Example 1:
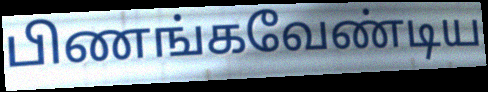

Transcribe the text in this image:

பிணங்கவேண்டிய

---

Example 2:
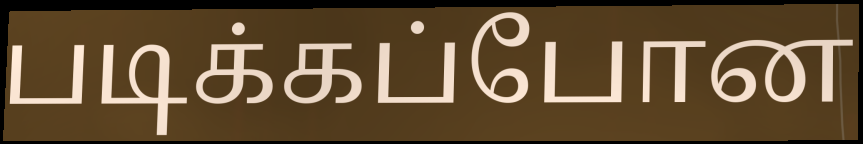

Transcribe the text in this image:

படிக்கப்போன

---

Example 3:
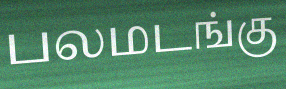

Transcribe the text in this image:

பலமடங்கு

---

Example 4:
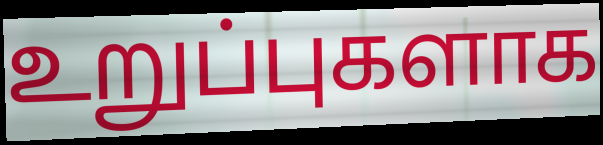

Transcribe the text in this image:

உறுப்புகளாக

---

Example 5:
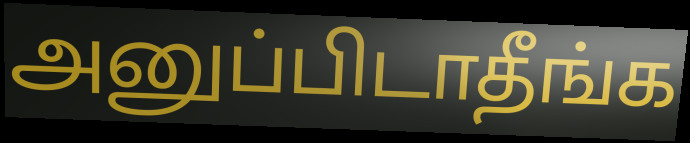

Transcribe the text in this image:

அனுப்பிடாதீங்க